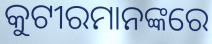
କୁଟୀରମାନଙ୍କରେ